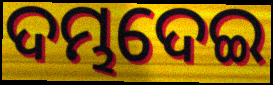
ଦମ୍ଭଦେଇ